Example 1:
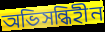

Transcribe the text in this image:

অভিসন্ধিহীন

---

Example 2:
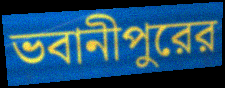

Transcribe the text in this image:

ভবানীপুরের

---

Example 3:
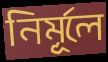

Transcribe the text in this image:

নির্মূলে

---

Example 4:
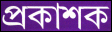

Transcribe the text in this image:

প্রকাশক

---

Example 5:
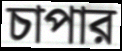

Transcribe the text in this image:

চাপার